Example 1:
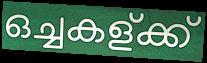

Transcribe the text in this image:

ഒച്ചകള്ക്ക്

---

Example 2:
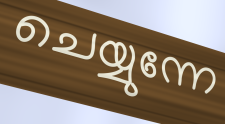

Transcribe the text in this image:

ചെയ്യുന്നേ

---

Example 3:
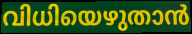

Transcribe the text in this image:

വിധിയെഴുതാൻ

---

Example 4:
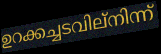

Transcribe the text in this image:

ഉറക്കച്ചടവില്നിന്ന്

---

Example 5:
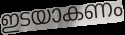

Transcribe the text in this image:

ഇടയാകണം